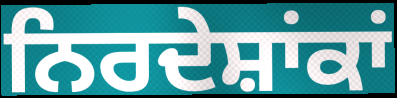
ਨਿਰਦੇਸ਼ਾਂਕਾਂ